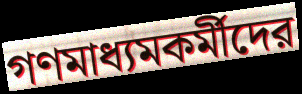
গণমাধ্যমকর্মীদের